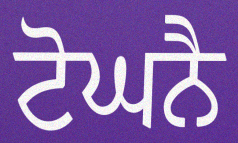
ਟੋਘਨੈ